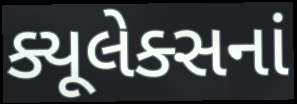
ક્યૂલેક્સનાં